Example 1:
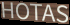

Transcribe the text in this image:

HOTAS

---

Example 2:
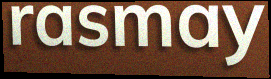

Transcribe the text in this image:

rasmay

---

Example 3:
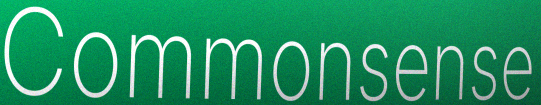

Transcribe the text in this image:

Commonsense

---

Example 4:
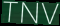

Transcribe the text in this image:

TNV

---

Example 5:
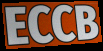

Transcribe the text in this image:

ECCB